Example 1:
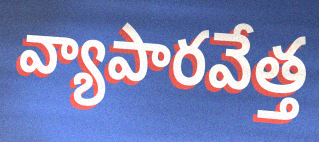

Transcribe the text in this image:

వ్యాపారవేత్త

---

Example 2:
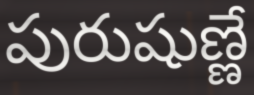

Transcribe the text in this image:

పురుషుణ్ణే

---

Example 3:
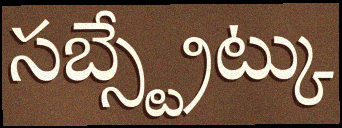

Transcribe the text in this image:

సబ్స్ట్రేట్కు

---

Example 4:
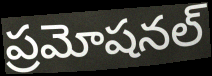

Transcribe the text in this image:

ప్రమోషనల్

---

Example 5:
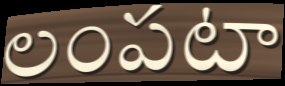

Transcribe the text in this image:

లంపటా